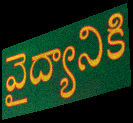
వైద్యానికి